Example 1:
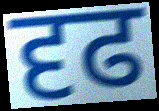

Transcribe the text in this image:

दृढ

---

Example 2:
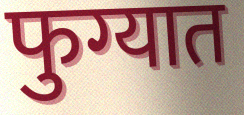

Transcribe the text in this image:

फुग्यात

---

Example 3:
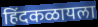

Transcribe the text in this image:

हिंदकळायला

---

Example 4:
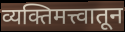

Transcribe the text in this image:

व्यक्तिमत्त्वातून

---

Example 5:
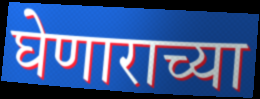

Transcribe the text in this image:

घेणाराच्या